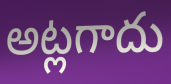
అట్లగాదు